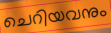
ചെറിയവനും